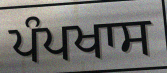
ਪੰਪਖਾਸ